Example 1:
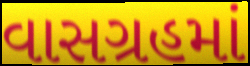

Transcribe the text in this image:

વાસગ્રહમાં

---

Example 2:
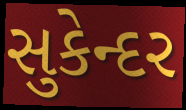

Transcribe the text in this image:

સુકેન્દર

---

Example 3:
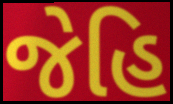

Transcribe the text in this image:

જેહિ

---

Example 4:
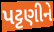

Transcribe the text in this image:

પટ્ટણીને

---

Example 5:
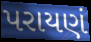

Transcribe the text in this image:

પરાયણં